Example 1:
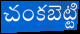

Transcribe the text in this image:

చంకబెట్టి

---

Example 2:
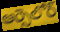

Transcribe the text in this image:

ఆర్సెలోర్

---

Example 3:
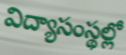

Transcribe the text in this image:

విద్యాసంస్థల్లో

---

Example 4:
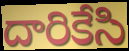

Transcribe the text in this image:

దారికేసి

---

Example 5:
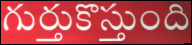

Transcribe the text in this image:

గుర్తుకొస్తుంది